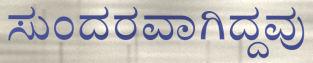
ಸುಂದರವಾಗಿದ್ದವು